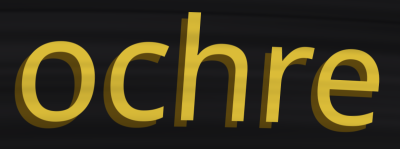
ochre